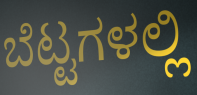
ಬೆಟ್ಟಗಳಲ್ಲಿ